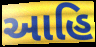
આહિ